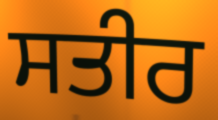
ਸਤੀਰ